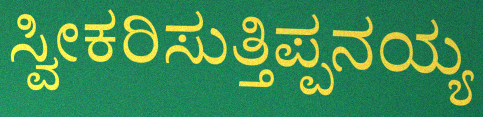
ಸ್ವೀಕರಿಸುತ್ತಿಪ್ಪನಯ್ಯ